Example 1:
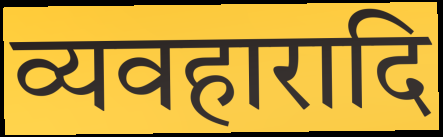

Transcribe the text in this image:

व्यवहारादि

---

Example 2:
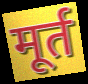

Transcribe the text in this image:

मूर्त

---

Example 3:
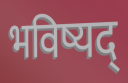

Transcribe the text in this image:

भविष्यद्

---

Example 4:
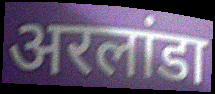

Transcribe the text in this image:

अरलांडा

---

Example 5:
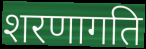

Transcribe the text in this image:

शरणागति